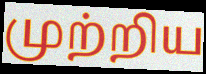
முற்றிய